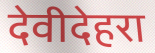
देवीदेहरा